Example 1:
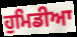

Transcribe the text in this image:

ਹੁਮਿਡੀਆ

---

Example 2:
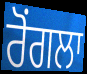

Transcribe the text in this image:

ਰੋਂਗਲਾ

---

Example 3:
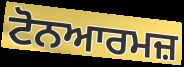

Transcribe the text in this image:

ਟੋਨਆਰਮਜ਼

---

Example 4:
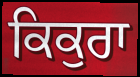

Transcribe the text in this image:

ਕਿਕੁਰਾ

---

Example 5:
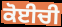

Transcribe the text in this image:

ਕੋਈਚੀ